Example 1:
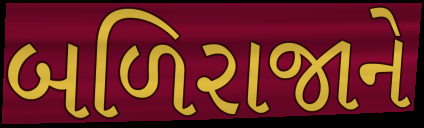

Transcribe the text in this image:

બળિરાજાને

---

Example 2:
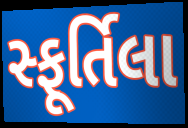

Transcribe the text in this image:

સ્ફૂર્તિલા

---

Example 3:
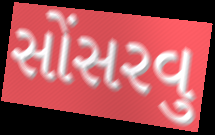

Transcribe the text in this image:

સોંસરવુ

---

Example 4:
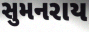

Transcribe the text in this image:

સુમનરાય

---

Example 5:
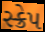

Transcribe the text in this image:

સ્ક્રેપ